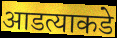
आडत्याकडे